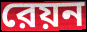
রেয়ন